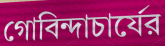
গোবিন্দাচার্যের